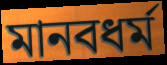
মানবধর্ম